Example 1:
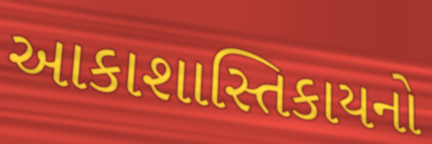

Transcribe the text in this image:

આકાશાસ્તિકાયનો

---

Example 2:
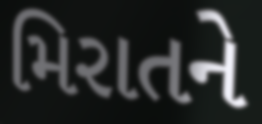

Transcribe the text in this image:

મિરાતને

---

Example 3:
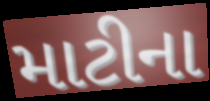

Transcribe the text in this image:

માટીના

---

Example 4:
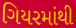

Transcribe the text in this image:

ગિયરમાંથી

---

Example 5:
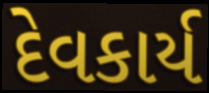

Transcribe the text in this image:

દેવકાર્ય